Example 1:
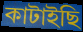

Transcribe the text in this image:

কাটাইছি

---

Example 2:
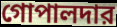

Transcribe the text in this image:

গোপালদার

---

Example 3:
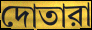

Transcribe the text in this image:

দোতারা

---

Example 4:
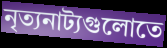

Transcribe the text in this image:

নৃত্যনাট্যগুলোতে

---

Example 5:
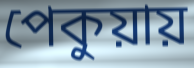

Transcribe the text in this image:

পেকুয়ায়